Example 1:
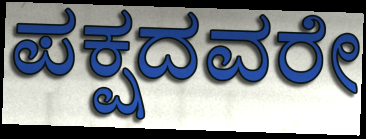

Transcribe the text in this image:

ಪಕ್ಷದವರೇ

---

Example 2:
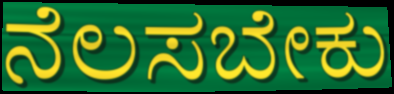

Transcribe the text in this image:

ನೆಲಸಬೇಕು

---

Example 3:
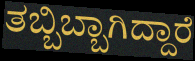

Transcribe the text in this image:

ತಬ್ಬಿಬ್ಬಾಗಿದ್ದಾರೆ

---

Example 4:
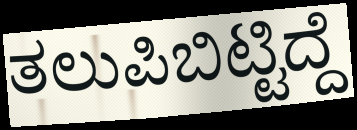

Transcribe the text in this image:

ತಲುಪಿಬಿಟ್ಟಿದ್ದೆ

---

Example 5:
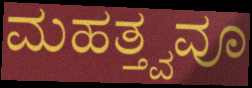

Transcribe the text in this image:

ಮಹತ್ತ್ವವೂ